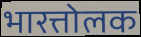
भारत्तोलक